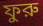
ফুরু